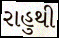
રાહુથી